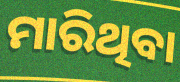
ମାରିଥିବା